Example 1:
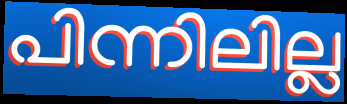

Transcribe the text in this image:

പിന്നിലില്ല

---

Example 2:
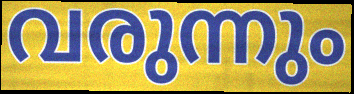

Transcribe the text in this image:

വരുന്നും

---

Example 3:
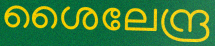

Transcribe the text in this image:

ശൈലേന്ദ്ര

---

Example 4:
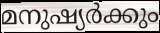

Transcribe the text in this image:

മനുഷ്യർക്കും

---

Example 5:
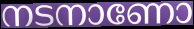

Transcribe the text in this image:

നടനാണോ